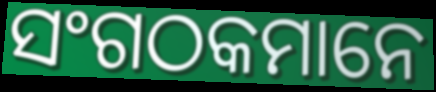
ସଂଗଠକମାନେ